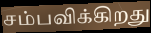
சம்பவிக்கிறது